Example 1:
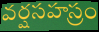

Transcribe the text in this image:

వర్షసహస్రం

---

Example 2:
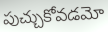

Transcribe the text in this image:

పుచ్చుకోవడమో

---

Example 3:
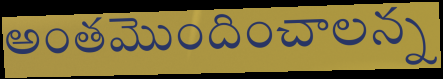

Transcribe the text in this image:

అంతమొందించాలన్న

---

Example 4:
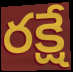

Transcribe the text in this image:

రక్షే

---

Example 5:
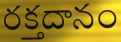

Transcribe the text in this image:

రక్తదానం